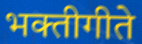
भक्तीगीते